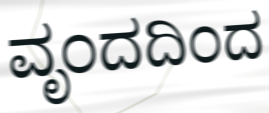
ವೃಂದದಿಂದ